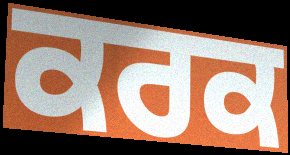
ਕਰਕ